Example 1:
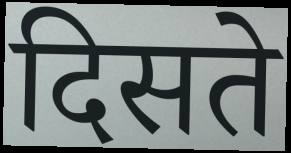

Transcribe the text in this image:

दिसते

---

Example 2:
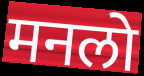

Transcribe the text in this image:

मनलो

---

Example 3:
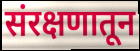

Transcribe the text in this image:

संरक्षणातून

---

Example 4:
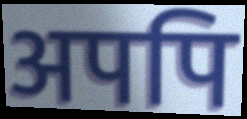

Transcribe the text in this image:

अपपि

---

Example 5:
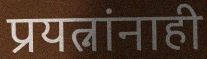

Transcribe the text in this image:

प्रयत्नांनाही